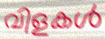
വിളകൾ